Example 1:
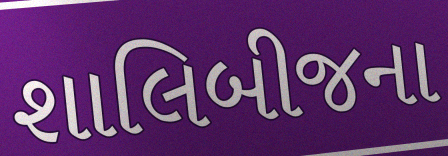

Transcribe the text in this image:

શાલિબીજના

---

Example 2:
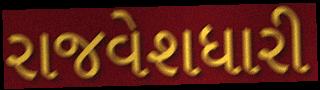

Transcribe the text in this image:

રાજવેશધારી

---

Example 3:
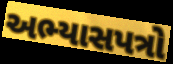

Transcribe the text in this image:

અભ્યાસપત્રો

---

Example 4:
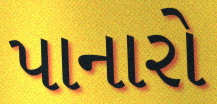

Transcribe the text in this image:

પાનારો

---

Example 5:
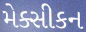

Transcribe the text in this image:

મેક્સીકન